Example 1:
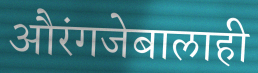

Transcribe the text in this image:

औरंगजेबालाही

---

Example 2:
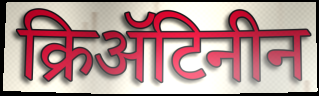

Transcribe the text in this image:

क्रिॲटिनीन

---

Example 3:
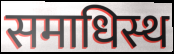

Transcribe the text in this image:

समाधिस्थ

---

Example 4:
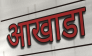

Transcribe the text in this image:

आखाडा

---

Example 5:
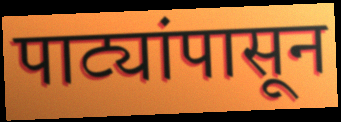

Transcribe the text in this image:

पाट्यांपासून